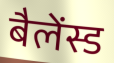
बैलेंस्ड